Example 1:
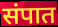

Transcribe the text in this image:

संपात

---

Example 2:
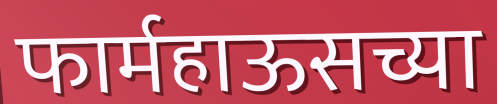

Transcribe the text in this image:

फार्महाऊसच्या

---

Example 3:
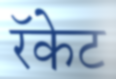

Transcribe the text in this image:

रॅकेट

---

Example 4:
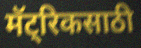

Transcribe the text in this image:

मॅट्रिकसाठी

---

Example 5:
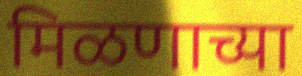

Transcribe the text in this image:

मिळणाच्या